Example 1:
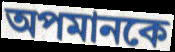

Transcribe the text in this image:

অপমানকে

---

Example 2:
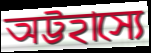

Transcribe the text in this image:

অট্টহাস্যে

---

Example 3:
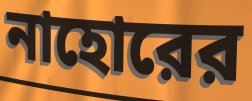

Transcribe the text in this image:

নাহোরের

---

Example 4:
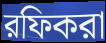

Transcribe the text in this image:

রফিকরা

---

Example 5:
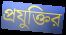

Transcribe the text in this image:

প্রযুক্তির